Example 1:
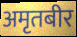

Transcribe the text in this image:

अमृतबीर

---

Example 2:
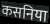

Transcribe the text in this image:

कसनिया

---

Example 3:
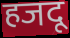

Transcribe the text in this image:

हजदू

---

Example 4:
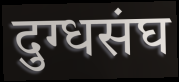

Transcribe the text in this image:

दुग्धसंघ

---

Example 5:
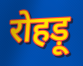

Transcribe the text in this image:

रोहड़ू